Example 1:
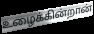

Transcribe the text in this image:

உழைக்கின்றான்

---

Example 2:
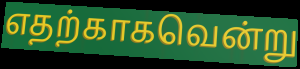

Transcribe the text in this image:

எதற்காகவென்று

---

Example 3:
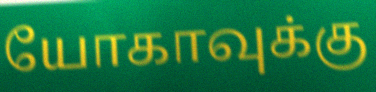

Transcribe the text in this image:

யோகாவுக்கு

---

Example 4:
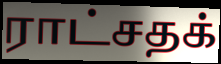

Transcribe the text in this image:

ராட்சதக்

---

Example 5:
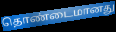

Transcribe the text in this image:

தொண்டைமானது